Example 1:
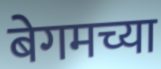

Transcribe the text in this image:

बेगमच्या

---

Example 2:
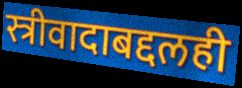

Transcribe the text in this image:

स्त्रीवादाबद्दलही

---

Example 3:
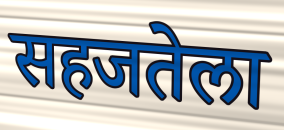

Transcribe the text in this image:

सहजतेला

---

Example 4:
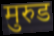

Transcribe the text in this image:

मुरुड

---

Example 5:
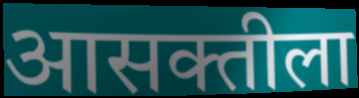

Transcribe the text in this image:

आसक्तीला